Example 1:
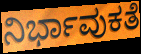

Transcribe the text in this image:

ನಿರ್ಭಾವುಕತೆ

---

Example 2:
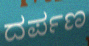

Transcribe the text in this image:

ದರ್ಪಣ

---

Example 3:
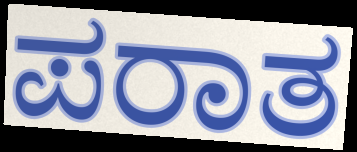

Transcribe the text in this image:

ಪರಾತ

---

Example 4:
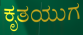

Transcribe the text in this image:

ಕೃತಯುಗ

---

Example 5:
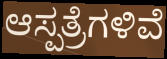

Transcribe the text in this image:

ಆಸ್ಪತ್ರೆಗಳಿವೆ